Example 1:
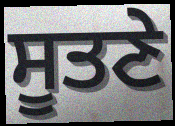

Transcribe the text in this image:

ਸੂਤਣੇ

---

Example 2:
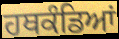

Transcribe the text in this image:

ਹਥਕੰਡਿਆਂ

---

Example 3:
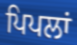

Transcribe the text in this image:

ਪਿਪਲਾਂ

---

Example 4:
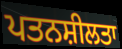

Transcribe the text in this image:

ਪਤਨਸ਼ੀਲਤਾ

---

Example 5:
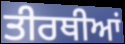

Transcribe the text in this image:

ਤੀਰਥੀਆਂ